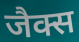
जैक्स